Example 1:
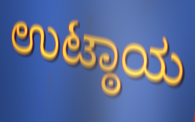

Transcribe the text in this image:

ಉಟ್ಠಾಯ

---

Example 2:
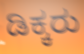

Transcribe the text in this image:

ಡಿಕ್ಕರು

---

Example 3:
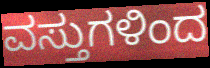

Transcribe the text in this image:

ವಸ್ತುಗಳಿಂದ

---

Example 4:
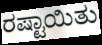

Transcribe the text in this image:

ರಷ್ಟಾಯಿತು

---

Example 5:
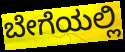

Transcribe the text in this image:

ಬೇಗೆಯಲ್ಲಿ